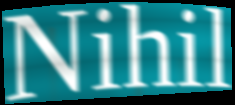
Nihil